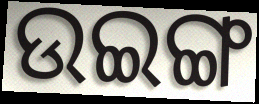
ଉଇଙ୍ଗ